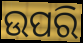
ଉପରି